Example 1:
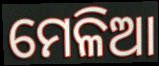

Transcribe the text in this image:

ମେଳିଆ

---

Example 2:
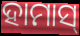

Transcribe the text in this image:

ହାମାସ୍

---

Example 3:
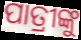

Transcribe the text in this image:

ପାତ୍ରୀଙ୍କୁ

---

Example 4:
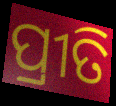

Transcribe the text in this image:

ପ୍ରୀତି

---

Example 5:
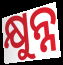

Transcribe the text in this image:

କ୍ଷୁନ୍ନ